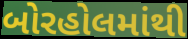
બોરહોલમાંથી